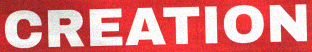
CREATION